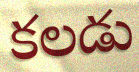
కలడు